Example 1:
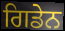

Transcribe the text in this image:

ਗਿਡੇਨ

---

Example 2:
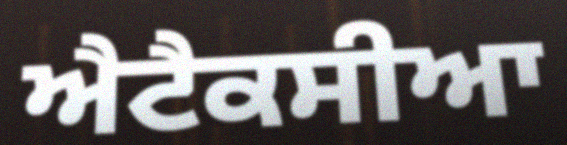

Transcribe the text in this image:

ਐਟੈਕਸੀਆ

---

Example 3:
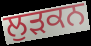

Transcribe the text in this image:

ਲੁੜਕਨ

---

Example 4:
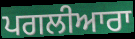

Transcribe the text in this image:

ਪਗਲੀਆਰਾ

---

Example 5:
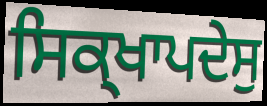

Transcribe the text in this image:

ਸਿਕ੍ਖਾਪਦੇਸੁ